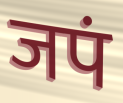
जपं